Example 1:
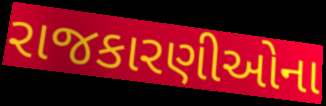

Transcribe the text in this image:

રાજકારણીઓના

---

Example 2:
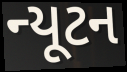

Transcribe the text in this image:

ન્યૂટન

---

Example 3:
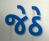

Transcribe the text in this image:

જેઠે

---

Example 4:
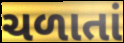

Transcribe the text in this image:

ચળાતાં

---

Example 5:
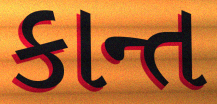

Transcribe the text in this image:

કાન્ત